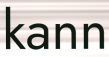
kann